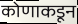
कोणाकडून